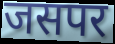
जसपर